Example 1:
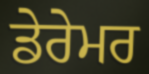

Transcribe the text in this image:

ਡੇਰੇਮਰ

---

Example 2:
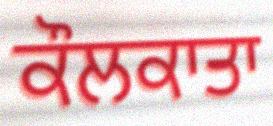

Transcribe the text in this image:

ਕੌਲਕਾਤਾ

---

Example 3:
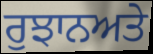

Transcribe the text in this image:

ਰੁਝਾਨਅਤੇ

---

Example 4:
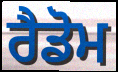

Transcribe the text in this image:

ਰੈਡੋਮ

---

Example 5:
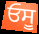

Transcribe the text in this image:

ਓਸੂ